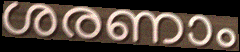
ശരണാം